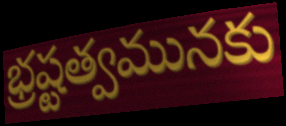
భ్రష్టత్వమునకు